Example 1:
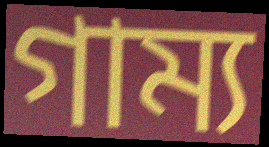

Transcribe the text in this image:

গাম্য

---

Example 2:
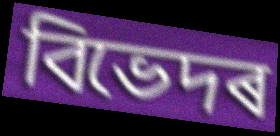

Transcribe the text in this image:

বিভেদৰ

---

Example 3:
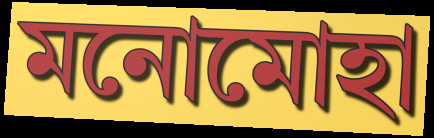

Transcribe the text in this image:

মনোমোহা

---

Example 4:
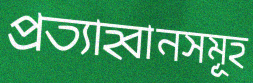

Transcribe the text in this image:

প্ৰত্যাহ্বানসমূহ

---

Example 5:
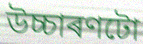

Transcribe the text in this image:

উচ্চাৰণটো